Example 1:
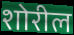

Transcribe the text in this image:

शोरील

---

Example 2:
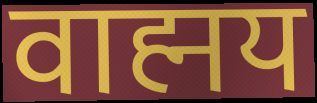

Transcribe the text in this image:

वाह्मय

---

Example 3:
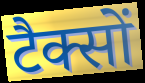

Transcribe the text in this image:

टैक्सों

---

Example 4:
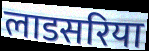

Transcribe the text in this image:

लाडसरिया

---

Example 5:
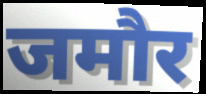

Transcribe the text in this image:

जमौर